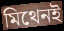
মিথেনই